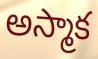
అస్మాక